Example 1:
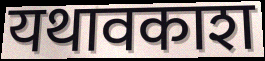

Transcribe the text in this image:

यथावकाश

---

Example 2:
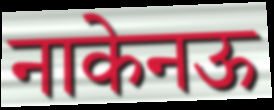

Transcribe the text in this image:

नाकेनऊ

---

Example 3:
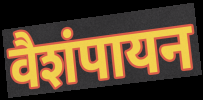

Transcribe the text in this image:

वैशंपायन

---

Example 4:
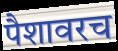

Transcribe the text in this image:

पैशावरच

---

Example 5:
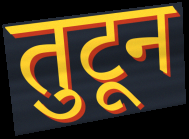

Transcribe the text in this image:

तुटून